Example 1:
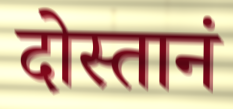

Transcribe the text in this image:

दोस्तानं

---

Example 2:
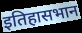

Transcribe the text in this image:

इतिहासभान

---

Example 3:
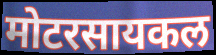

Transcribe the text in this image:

मोटरसायकल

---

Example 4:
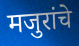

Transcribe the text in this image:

मजुरांचे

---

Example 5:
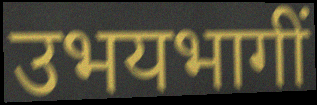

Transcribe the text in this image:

उभयभागीं